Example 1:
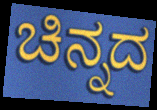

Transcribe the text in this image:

ಚಿನ್ನದ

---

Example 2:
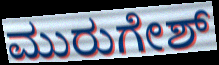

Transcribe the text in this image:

ಮುರುಗೇಶ್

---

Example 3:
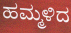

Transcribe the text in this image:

ಹಮ್ಮಳಿದ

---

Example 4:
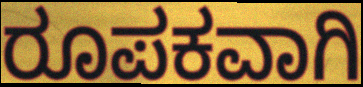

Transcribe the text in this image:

ರೂಪಕವಾಗಿ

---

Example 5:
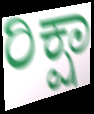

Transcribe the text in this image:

ರಿಕ್ಷಾ